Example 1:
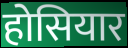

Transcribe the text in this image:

होसियार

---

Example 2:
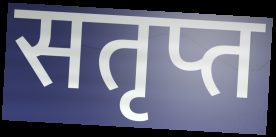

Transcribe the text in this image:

सतृप्त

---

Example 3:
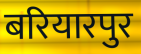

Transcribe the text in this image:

बरियारपुर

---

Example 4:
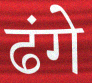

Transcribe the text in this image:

ढंगे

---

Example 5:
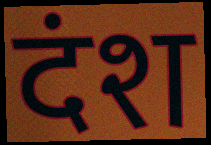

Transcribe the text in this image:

दंश